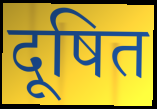
दूषित